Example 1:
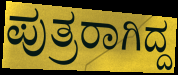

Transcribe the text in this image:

ಪುತ್ರರಾಗಿದ್ದ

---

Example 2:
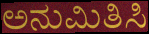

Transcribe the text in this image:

ಅನುಮಿತಿಸಿ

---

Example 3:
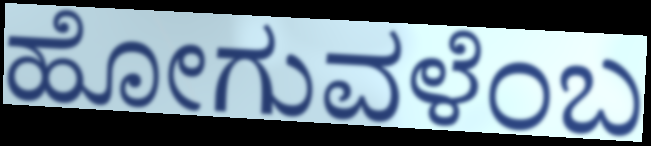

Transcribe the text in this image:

ಹೋಗುವಳೆಂಬ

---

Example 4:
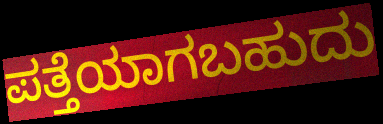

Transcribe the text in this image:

ಪತ್ತೆಯಾಗಬಹುದು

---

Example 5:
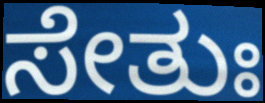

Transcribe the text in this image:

ಸೇತುಃ